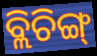
ବ୍ଲିଚିଙ୍ଗ୍